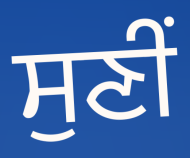
ਸੁਣੀਂ